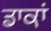
ਡਾਕਾਂ